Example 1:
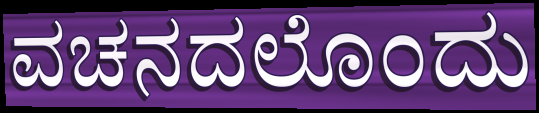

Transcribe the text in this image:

ವಚನದಲೊಂದು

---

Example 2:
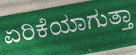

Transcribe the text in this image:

ಏರಿಕೆಯಾಗುತ್ತಾ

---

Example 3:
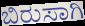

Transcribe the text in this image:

ಬಿರುಸಾಗಿ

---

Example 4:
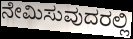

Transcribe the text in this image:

ನೇಮಿಸುವುದರಲ್ಲಿ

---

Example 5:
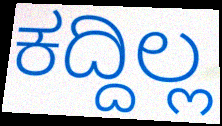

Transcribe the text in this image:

ಕದ್ದಿಲ್ಲ